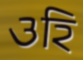
ওহি